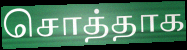
சொத்தாக